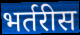
भर्तरीस